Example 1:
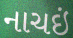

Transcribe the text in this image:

નાચઇં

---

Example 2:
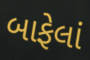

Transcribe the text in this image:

બાફેલાં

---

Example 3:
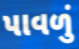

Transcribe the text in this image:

પાવળું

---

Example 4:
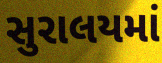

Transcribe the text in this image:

સુરાલયમાં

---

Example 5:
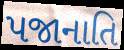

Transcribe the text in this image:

પજાનાતિ